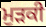
ਮੁੜਕੀ